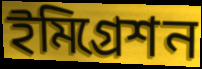
ইমিগ্রেশন